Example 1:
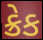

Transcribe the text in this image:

ક્રેક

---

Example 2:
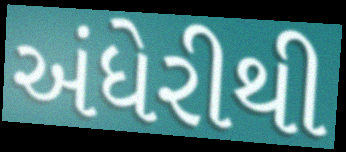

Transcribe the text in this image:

અંધેરીથી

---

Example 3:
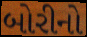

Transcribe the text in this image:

બોરીનો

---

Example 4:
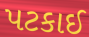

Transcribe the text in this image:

પટકાઈ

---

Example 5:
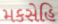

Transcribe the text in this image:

મકસેહિ